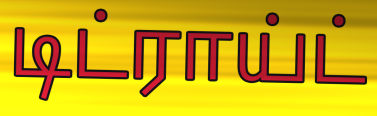
டிட்ராய்ட்